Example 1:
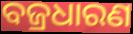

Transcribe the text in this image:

ବଜ୍ରଧାରଣ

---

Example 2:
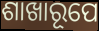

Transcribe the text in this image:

ଶାଖାରୂପେ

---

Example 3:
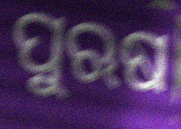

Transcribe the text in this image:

ପୁଋଷ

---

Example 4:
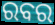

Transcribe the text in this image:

ରବର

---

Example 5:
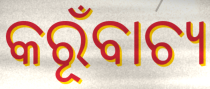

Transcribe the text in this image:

କରୂଁବାଚ୍ୟ